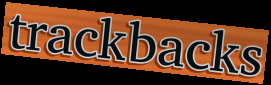
trackbacks